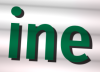
ine